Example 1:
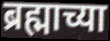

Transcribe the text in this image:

ब्रह्माच्या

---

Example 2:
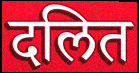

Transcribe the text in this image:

दलित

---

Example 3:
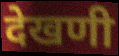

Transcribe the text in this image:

देखणी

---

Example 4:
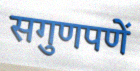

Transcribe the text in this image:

सगुणपणें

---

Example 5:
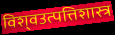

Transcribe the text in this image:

विश्वउत्पत्तिशास्त्र